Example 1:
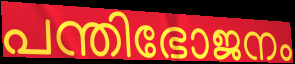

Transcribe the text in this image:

പന്തിഭോജനം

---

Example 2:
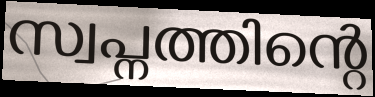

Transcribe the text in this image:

സ്വപ്നത്തിന്റെ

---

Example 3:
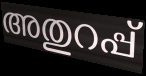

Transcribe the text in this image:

അതുറപ്പ്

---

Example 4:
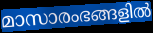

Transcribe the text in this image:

മാസാരംഭങ്ങളിൽ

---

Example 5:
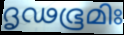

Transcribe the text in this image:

ദൃഢഭൂമിഃ